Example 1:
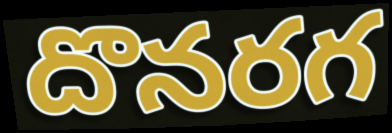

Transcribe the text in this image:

దొనరగ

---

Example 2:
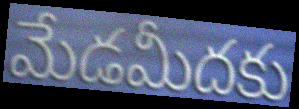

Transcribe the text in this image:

మేడమీదకు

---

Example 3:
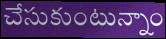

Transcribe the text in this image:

చేసుకుంటున్నాం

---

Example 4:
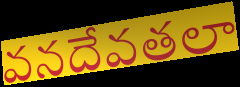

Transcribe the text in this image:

వనదేవతలా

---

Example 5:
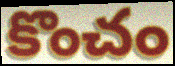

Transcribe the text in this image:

కొంచం